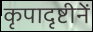
कृपादृष्टीनें